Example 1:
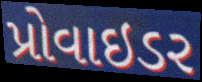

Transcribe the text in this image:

પ્રોવાઇડર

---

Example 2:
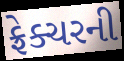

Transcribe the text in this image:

ફ્રેક્ચરની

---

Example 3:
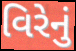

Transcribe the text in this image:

વિરેનું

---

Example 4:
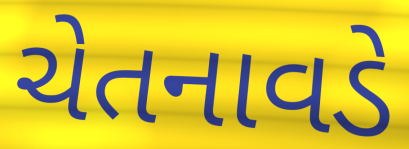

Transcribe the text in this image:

ચેતનાવડે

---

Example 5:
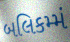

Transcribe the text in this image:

બલિકમ્મં